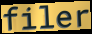
filer